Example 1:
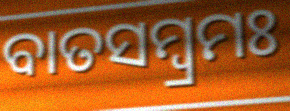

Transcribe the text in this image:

ବାତସମ୍ବ୍ରମଃ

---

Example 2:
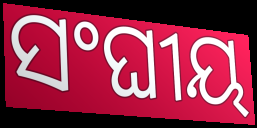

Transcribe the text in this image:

ସଂଘୀୟ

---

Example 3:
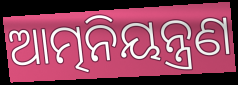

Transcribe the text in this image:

ଆତ୍ମନିୟନ୍ତ୍ରଣ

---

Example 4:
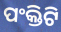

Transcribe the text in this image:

ପଂକ୍ତିଟି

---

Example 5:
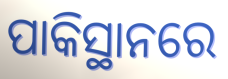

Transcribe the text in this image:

ପାକିସ୍ଥାନରେ